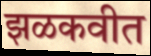
झळकवीत